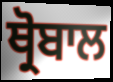
ਥ੍ਰੋਬਾਲ